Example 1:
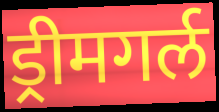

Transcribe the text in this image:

ड्रीमगर्ल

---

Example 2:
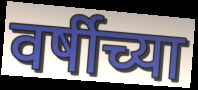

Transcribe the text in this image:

वर्षीच्या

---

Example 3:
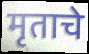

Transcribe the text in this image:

मृताचे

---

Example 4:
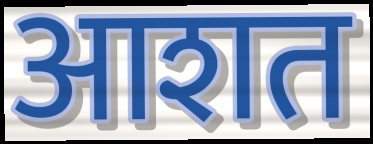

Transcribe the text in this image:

आशत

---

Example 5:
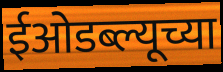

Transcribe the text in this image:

ईओडब्ल्यूच्या